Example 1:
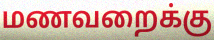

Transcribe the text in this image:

மணவறைக்கு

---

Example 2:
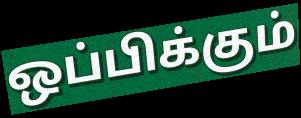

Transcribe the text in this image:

ஒப்பிக்கும்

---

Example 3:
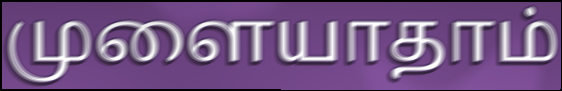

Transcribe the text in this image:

முளையாதாம்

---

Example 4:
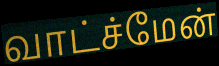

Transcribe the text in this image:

வாட்ச்மேன்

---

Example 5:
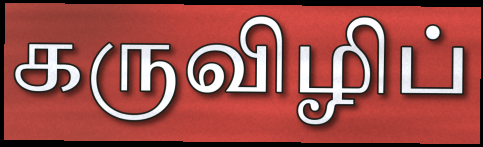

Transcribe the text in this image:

கருவிழிப்